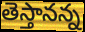
తెస్తానన్న